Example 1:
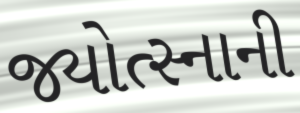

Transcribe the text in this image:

જ્યોત્સ્નાની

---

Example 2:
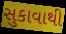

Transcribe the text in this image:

સુકાવાથી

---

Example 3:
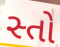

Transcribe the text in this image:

સ્તો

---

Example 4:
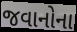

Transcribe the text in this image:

જવાનોના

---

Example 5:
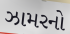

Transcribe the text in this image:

ઝામરનો